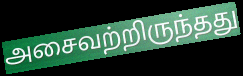
அசைவற்றிருந்தது